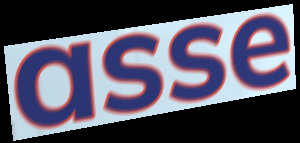
asse